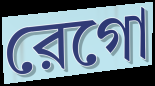
রেগো